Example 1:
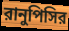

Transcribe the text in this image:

রানুপিসির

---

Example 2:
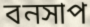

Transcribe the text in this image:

বনসাপ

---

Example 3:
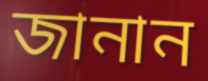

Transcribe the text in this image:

জানান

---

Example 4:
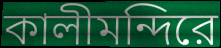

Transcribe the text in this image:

কালীমন্দিরে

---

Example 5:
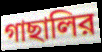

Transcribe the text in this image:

গাছালির